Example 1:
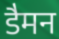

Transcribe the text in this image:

डैमन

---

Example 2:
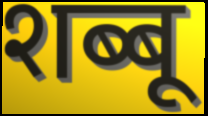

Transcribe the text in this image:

शब्बू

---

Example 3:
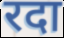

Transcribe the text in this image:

रदा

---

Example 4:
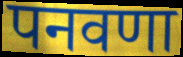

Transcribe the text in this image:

पनवणा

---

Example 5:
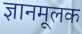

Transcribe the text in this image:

ज्ञानमूलक